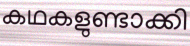
കഥകളുണ്ടാക്കി